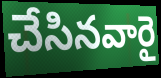
చేసినవారై